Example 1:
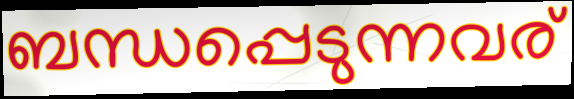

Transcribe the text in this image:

ബന്ധപ്പെടുന്നവര്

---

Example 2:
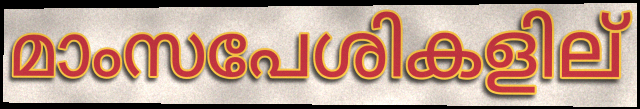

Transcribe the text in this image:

മാംസപേശികളില്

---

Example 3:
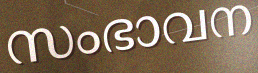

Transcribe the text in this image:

സംഭാവന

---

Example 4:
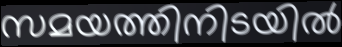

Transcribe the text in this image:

സമയത്തിനിടയിൽ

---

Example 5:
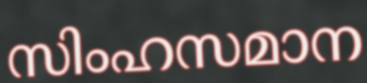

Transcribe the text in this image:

സിംഹസമാന